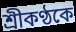
শ্রীকণ্ঠকে